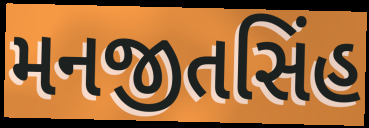
મનજીતસિંહ